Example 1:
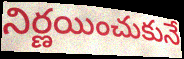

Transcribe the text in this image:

నిర్ణయించుకునే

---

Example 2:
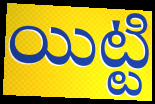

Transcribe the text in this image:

యిట్టి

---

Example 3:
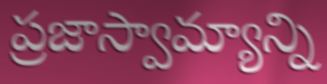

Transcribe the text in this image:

ప్రజాస్వామ్యాన్ని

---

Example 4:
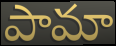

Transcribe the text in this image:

పామా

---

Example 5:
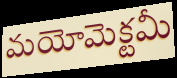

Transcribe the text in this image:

మయోమెక్టమీ